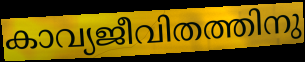
കാവ്യജീവിതത്തിനു